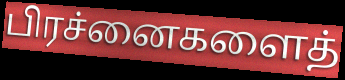
பிரச்னைகளைத்